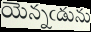
యెన్నఁడును